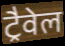
ट्रैवेल